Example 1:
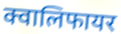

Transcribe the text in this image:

क्वालिफायर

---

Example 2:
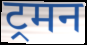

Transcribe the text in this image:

ट्रमन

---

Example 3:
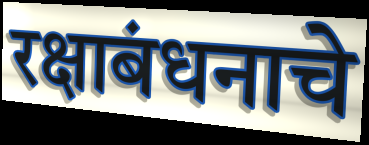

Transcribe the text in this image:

रक्षाबंधनाचे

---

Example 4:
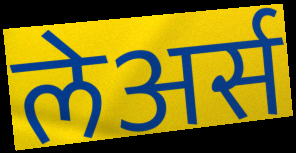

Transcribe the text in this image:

लेअर्स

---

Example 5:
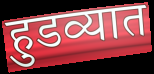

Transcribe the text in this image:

हुडव्यात